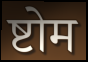
ष्टोम